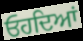
ਓਹਦਿਆਂ